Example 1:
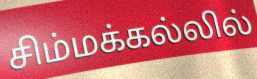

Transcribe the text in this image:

சிம்மக்கல்லில்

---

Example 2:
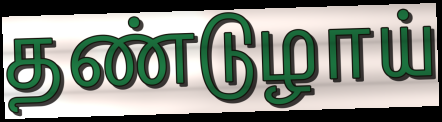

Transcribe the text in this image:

தண்டுழாய்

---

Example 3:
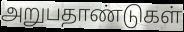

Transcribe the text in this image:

அறுபதாண்டுகள்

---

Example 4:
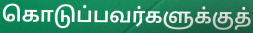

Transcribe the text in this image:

கொடுப்பவர்களுக்குத்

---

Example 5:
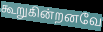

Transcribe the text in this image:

கூறுகின்றனவே